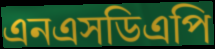
এনএসডিএপি